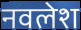
नवलेश